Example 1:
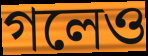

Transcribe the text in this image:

গলেও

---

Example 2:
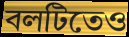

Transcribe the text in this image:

বলটিতেও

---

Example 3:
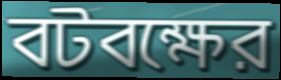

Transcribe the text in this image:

বটবক্ষের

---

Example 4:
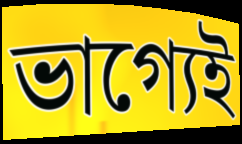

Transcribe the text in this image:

ভাগ্যেই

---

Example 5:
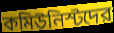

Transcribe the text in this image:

কমিউনিস্টদের